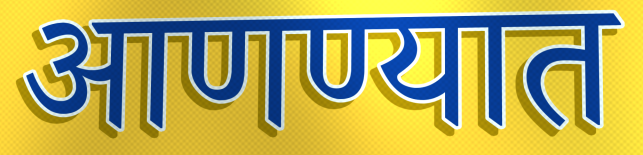
आणण्यात